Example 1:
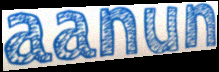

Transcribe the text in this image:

aanun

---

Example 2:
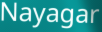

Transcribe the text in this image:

Nayagar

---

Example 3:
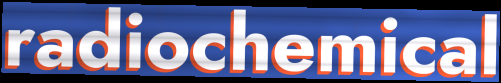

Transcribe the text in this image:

radiochemical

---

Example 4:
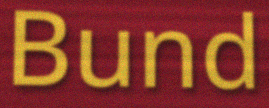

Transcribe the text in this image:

Bund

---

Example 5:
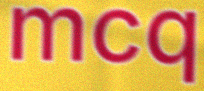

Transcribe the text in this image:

mcq